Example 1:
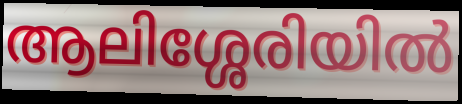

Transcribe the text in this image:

ആലിശ്ശേരിയിൽ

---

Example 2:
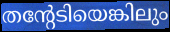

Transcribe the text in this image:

തന്റേടിയെങ്കിലും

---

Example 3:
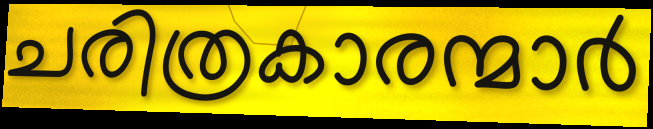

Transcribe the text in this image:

ചരിത്രകാരന്മാർ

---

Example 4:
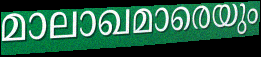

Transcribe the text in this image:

മാലാഖമാരെയും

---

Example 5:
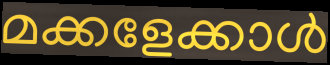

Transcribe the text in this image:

മക്കളേക്കാൾ